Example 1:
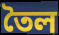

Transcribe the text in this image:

তৈল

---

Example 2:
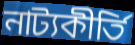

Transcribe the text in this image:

নাট্যকীর্তি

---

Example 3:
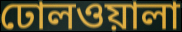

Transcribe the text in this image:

ঢোলওয়ালা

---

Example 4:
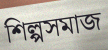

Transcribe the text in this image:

শিল্পসমাজ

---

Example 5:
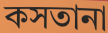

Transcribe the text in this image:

কসতানা